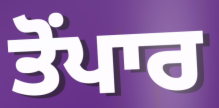
ਤੋਂਪਾਰ